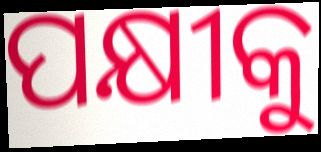
ପକ୍ଷୀକୁ